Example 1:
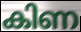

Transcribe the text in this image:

കിണ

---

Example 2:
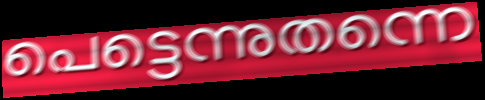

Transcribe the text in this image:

പെട്ടെന്നുതന്നെ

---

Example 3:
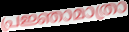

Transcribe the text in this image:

പ്രജ്ഞാമാത്രാ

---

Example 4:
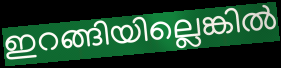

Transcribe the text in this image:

ഇറങ്ങിയില്ലെങ്കിൽ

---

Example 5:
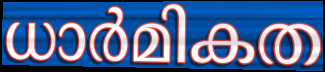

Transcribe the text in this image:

ധാർമികത